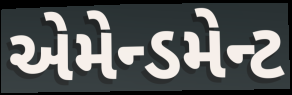
એમેન્ડમેન્ટ